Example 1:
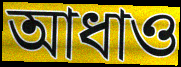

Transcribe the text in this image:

আধাও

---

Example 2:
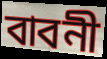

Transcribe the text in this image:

বাবনী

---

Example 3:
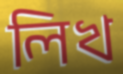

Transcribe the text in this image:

লিখ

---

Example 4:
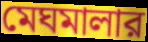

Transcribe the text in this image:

মেঘমালার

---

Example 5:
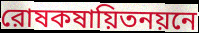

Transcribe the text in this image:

রোষকষায়িতনয়নে